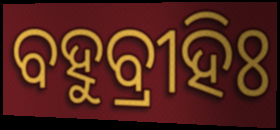
ବହୁବ୍ରୀହିଃ